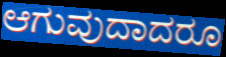
ಆಗುವುದಾದರೂ